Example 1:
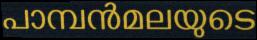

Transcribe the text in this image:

പാമ്പൻമലയുടെ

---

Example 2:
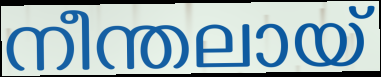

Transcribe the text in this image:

നീന്തലായ്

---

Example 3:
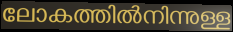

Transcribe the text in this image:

ലോകത്തിൽനിന്നുള്ള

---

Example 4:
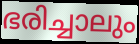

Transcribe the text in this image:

ഭരിച്ചാലും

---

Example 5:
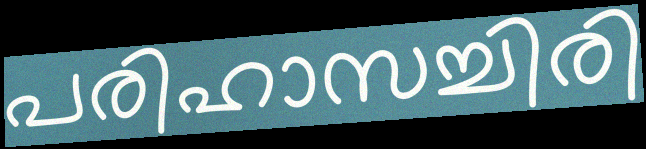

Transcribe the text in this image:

പരിഹാസച്ചിരി